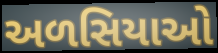
અળસિયાઓ